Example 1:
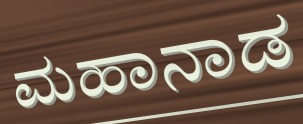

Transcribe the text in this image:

ಮಹಾನಾಡ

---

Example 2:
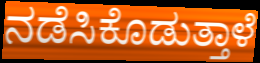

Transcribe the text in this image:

ನಡೆಸಿಕೊಡುತ್ತಾಳೆ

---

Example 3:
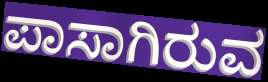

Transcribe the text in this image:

ಪಾಸಾಗಿರುವ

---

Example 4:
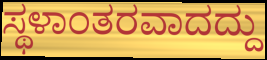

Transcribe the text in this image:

ಸ್ಥಳಾಂತರವಾದದ್ದು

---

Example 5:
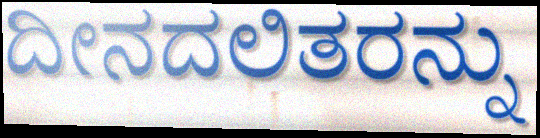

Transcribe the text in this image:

ದೀನದಲಿತರನ್ನು